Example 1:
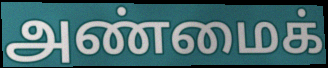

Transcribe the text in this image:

அண்மைக்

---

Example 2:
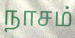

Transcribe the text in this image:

நாசம்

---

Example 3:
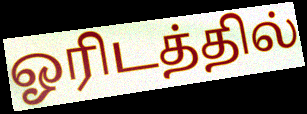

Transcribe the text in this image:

ஓரிடத்தில்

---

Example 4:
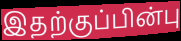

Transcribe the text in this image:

இதற்குப்பின்பு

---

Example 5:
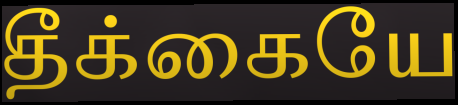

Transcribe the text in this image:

தீக்கையே